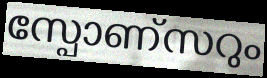
സ്പോണ്സറും